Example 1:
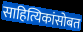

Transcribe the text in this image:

साहित्यिकांसोबत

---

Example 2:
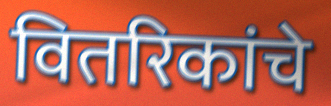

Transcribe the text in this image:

वितरिकांचे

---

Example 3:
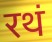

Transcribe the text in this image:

रथं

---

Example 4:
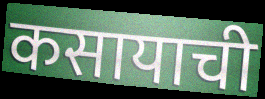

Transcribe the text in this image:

कसायाची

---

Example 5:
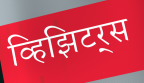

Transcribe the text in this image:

व्हिझिटर्स